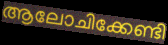
ആലോചിക്കേണ്ടി